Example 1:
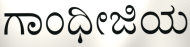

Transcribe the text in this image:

ಗಾಂಧೀಜಿಯ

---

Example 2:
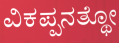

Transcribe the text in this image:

ವಿಕಪ್ಪನತ್ಥೋ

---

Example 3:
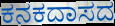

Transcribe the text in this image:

ಕನಕದಾಸದ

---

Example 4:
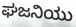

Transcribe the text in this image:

ಘಜನಿಯು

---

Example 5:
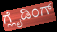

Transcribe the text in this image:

ಗ್ಲೈಡಿಂಗ್